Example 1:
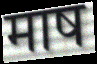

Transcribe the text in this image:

माष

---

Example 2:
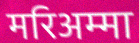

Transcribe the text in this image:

मरिअम्मा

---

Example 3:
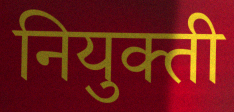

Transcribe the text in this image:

नियुक्ती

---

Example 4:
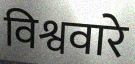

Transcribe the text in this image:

विश्ववारे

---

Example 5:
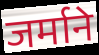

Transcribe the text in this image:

जर्माने